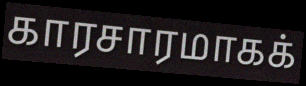
காரசாரமாகக்